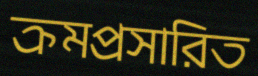
ক্রমপ্রসারিত